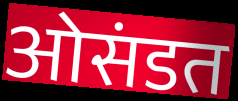
ओसंडत